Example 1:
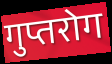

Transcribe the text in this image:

गुप्तरोग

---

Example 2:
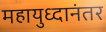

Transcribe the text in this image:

महायुध्दानंतर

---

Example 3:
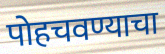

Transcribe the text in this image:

पोहचवण्याचा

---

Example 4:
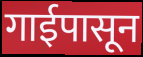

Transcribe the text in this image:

गाईपासून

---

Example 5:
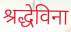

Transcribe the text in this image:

श्रद्धेविना